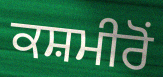
ਕਸ਼ਮੀਰੋਂ